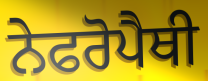
ਨੇਫਰੋਪੈਥੀ